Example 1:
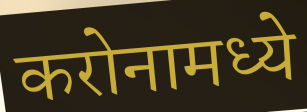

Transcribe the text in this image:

करोनामध्ये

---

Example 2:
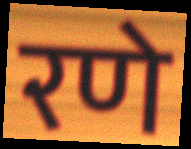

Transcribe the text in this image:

रणे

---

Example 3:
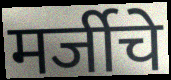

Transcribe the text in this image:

मर्जीचे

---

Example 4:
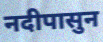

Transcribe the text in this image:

नदीपासुन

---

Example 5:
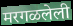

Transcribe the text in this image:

मरगळलेली